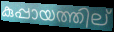
കുപ്പായത്തില്